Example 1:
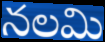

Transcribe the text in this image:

నలమి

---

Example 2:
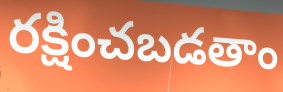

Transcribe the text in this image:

రక్షించబడతాం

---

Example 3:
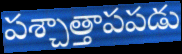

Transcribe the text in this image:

పశ్చాత్తాపపడు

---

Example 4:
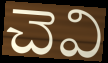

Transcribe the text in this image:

చెవి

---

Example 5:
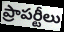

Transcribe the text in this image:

ప్రాపర్టీలు